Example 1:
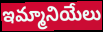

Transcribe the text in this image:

ఇమ్మానియేలు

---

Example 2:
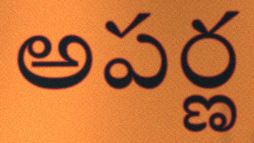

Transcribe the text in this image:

అపర్ణ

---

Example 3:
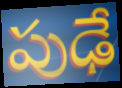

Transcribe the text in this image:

పుఢే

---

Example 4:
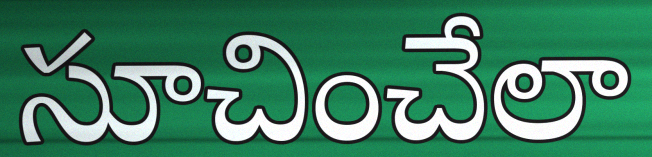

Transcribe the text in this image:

సూచించేలా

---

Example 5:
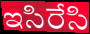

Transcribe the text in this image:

ఇసిరేసి